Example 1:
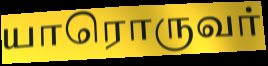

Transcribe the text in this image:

யாரொருவர்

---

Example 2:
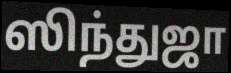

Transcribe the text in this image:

ஸிந்துஜா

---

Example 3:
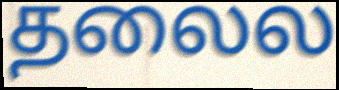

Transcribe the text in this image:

தலைல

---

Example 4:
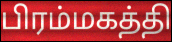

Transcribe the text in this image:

பிரம்மகத்தி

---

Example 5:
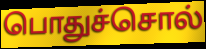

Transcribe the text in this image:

பொதுச்சொல்